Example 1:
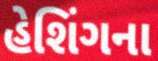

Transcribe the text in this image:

હેશિંગના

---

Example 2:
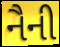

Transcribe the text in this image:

નૈની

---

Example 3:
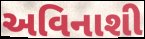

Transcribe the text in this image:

અવિનાશી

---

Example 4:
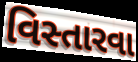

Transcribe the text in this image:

વિસ્તારવા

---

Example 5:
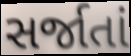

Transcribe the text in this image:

સર્જાતાં